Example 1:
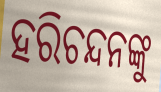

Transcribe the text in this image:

ହରିଚନ୍ଦନଙ୍କୁ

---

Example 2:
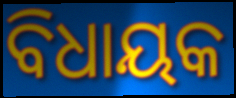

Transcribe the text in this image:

ବିଧାୟକ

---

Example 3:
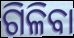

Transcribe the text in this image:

ଗିଳିବା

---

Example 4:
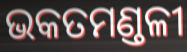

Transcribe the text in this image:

ଭକତମଣ୍ଡଳୀ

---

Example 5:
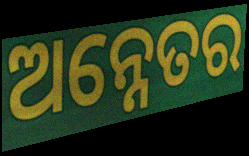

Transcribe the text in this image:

ଅନ୍ନେତର